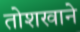
तोशखाने